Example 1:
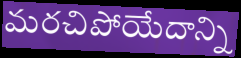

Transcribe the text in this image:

మరచిపోయేదాన్ని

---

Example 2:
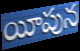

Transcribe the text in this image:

యీపున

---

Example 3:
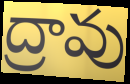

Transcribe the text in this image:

ద్రావు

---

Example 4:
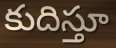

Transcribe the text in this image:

కుదిస్తూ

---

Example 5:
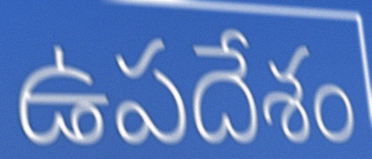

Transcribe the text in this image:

ఉపదేశం